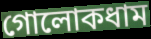
গোলোকধাম